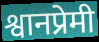
श्वानप्रेमी